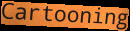
Cartooning